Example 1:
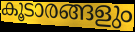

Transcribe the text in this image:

കൂടാരങ്ങളും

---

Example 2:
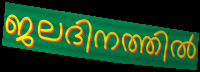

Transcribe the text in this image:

ജലദിനത്തിൽ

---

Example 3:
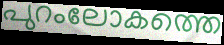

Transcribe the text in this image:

പുറംലോകത്തെ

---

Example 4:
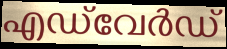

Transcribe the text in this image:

എഡ്‌വേർഡ്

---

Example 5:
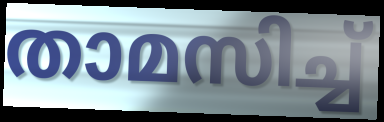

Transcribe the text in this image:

താമസിച്ച്